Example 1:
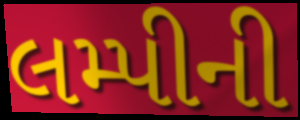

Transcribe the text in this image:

લમ્પીની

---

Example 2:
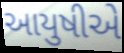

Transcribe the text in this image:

આયુષીએ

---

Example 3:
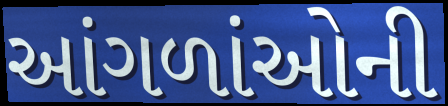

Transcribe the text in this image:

આંગળાંઓની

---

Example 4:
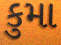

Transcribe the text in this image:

કુમા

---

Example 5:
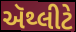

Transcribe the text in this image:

ઍથ્લીટે